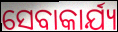
ସେବାକାର୍ଯ୍ୟ